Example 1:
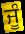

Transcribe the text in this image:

ਜੂੰ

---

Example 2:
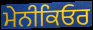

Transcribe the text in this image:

ਮੇਨੀਕਿਓਰ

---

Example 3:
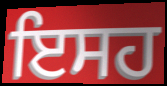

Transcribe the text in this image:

ਇਸਹ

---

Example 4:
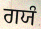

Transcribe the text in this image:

ਗਯੰ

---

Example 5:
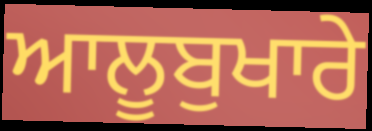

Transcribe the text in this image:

ਆਲੂਬੁਖਾਰੇ